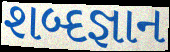
શબ્દજ્ઞાન